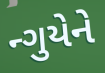
ન્ગુયેને